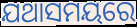
ଯଥାସମୟରେ